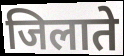
जिलाते